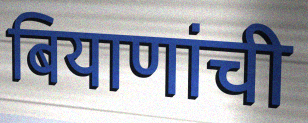
बियाणांची